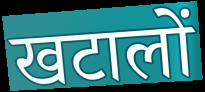
खटालों